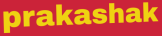
prakashak